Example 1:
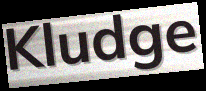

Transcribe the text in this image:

Kludge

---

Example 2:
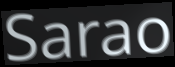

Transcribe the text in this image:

Sarao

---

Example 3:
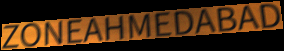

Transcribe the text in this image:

ZONEAHMEDABAD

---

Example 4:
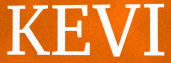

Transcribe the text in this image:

KEVI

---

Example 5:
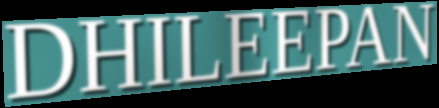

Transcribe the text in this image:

DHILEEPAN